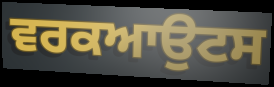
ਵਰਕਆਉਟਸ